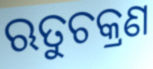
ଋତୁଚକ୍ରଣ